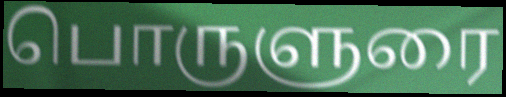
பொருளுரை